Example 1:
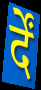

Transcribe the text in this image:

र्दें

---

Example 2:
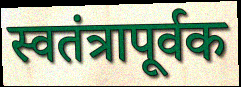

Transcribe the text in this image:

स्वतंत्रापूर्वक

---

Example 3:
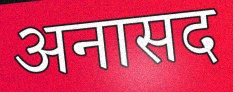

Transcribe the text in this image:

अनासद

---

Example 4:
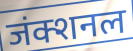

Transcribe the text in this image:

जंक्शनल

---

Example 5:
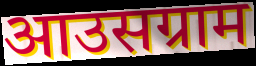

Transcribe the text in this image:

आउसग्राम